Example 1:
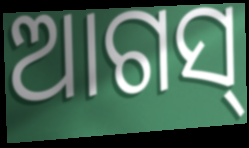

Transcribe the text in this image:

ଆଗସ୍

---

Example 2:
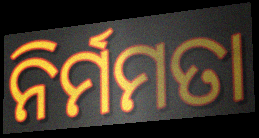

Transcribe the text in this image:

ନିର୍ମମତା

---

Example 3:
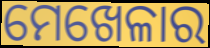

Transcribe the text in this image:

ମେଖେଳାର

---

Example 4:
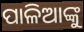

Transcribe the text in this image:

ପାଳିଆଙ୍କୁ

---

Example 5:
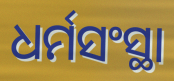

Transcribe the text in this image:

ଧର୍ମସଂସ୍ଥା